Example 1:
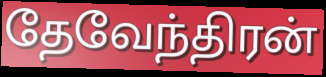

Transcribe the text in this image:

தேவேந்திரன்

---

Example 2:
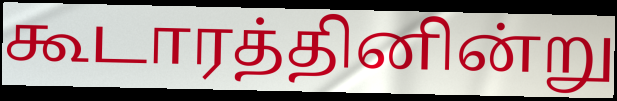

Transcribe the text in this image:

கூடாரத்தினின்று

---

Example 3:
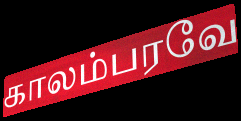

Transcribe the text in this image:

காலம்பரவே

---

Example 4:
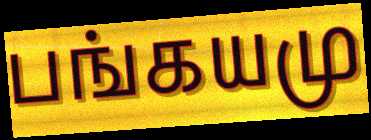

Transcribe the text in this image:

பங்கயமு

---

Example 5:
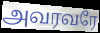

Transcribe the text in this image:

அவரவரே